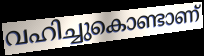
വഹിച്ചുകൊണ്ടാണ്